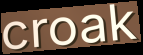
croak